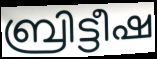
ബ്രിട്ടീഷ